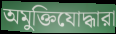
অমুক্তিযোদ্ধারা